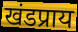
खंडप्राय